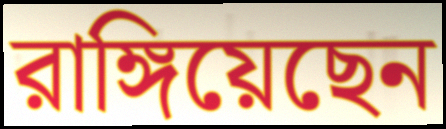
রাঙ্গিয়েছেন